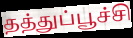
தத்துப்பூச்சி